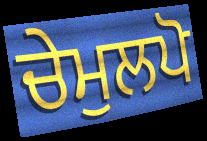
ਚੇਮੁਲਪੋ